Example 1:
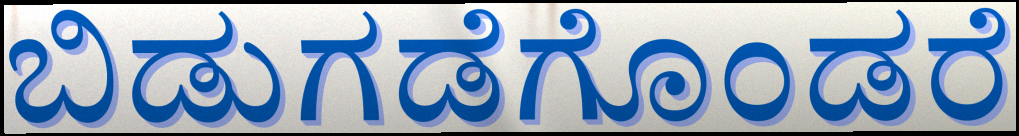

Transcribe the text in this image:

ಬಿಡುಗಡೆಗೊಂಡರೆ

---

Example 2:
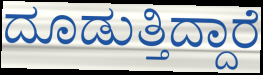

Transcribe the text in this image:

ದೂಡುತ್ತಿದ್ದಾರೆ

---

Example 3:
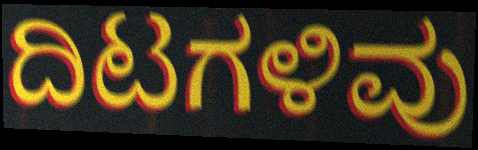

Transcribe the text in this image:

ದಿಟಗಳಿವು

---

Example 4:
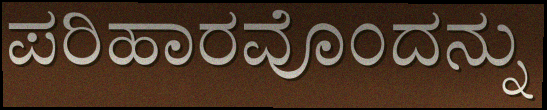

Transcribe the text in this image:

ಪರಿಹಾರವೊಂದನ್ನು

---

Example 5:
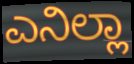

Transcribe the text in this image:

ಎನಿಲ್ಲಾ